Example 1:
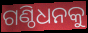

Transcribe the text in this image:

ଗଣ୍ଠିଧନକୁ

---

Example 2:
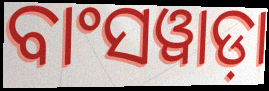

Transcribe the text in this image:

ବାଂସୱାଡ଼ା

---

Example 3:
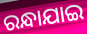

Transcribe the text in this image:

ରନ୍ଧାଯାଇ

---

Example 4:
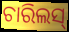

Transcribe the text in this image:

ଚାରିଲସ୍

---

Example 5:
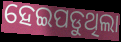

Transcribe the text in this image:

ହେଇପଡୁଥିଲା